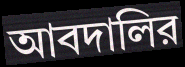
আবদালির